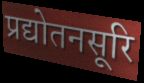
प्रद्योतनसूरि